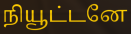
நியூட்டனே